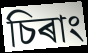
চিৰাং